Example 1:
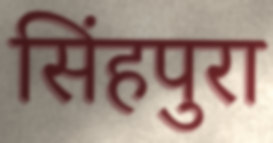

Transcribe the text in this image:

सिंहपुरा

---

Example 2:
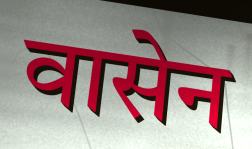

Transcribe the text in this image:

वासेन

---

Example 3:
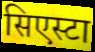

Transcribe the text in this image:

सिएस्टा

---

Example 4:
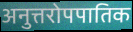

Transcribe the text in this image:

अनुत्तरोपपातिक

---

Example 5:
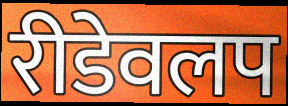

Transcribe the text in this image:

रीडेवलप